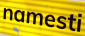
namesti